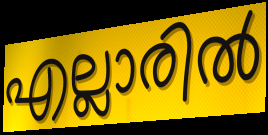
എല്ലാരിൽ